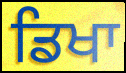
ਡਿਖਾ